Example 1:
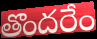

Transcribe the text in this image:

తొందరేం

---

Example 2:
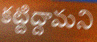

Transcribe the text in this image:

కట్టిద్దామని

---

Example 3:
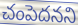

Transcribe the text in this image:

చంపెదనని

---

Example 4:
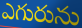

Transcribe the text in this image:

ఎగురును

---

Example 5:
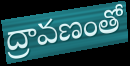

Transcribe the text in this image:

ద్రావణంతో